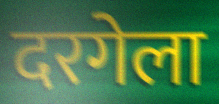
दरगेला